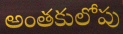
అంతకులోపు